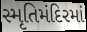
સ્મૃતિમંદિરમાં